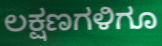
ಲಕ್ಷಣಗಳಿಗೂ